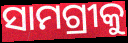
ସାମଗ୍ରୀକୁ